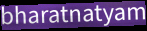
bharatnatyam